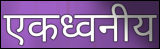
एकध्वनीय